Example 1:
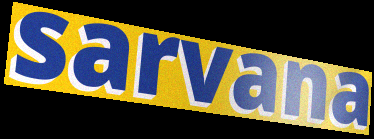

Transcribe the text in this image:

sarvana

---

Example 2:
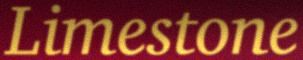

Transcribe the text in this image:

Limestone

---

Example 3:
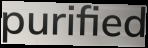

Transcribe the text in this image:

purified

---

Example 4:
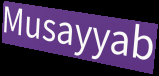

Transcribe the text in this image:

Musayyab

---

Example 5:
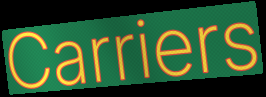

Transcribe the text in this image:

Carriers